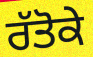
ਰੱਤੋਕੇ